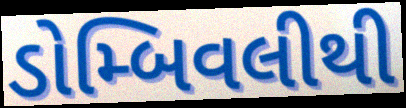
ડોમ્બિવલીથી